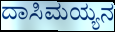
ದಾಸಿಮಯ್ಯನ